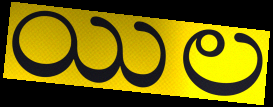
యిల